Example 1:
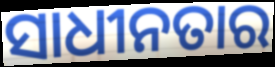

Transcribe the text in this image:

ସାଧୀନତାର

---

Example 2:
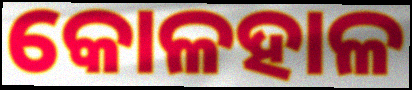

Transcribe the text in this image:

କୋଳହାଳ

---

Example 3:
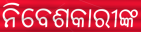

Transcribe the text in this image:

ନିବେଶକାରୀଙ୍କ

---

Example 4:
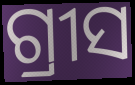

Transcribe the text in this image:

ଗ୍ରୀସ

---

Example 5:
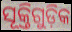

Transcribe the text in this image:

ସୂକ୍ତିଗୁଡ଼ିକ